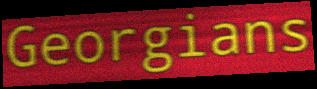
Georgians